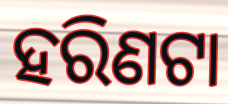
ହରିଣଟା